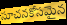
సూచనకోసమైన